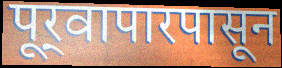
पूर्वापारपासून